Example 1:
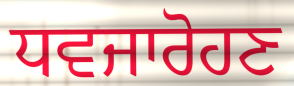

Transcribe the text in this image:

ਧਵਜਾਰੋਹਣ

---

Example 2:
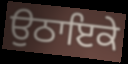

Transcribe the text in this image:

ਉਠਾਇਕੇ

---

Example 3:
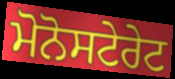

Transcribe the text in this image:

ਮੋਨੋਸਟੇਰੇਟ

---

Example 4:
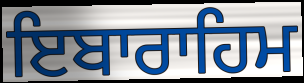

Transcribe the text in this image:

ਇਬਾਰਾਹਿਮ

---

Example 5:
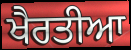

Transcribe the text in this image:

ਖੈਰਤੀਆ